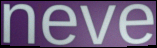
neve